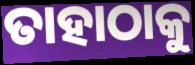
ତାହାଠାକୁ